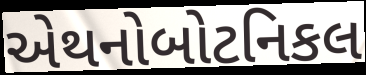
એથનોબોટનિકલ